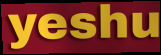
yeshu